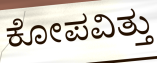
ಕೋಪವಿತ್ತು